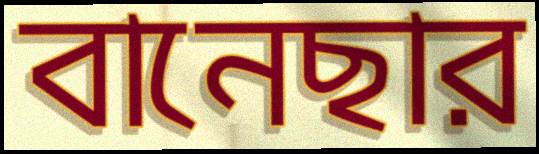
বানেছার